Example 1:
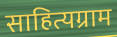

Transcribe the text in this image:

साहित्यग्राम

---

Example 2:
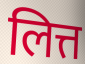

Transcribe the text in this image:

लित्त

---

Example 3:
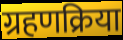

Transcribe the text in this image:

ग्रहणक्रिया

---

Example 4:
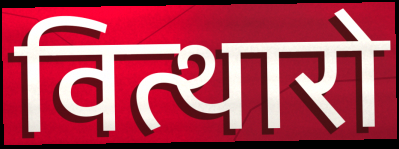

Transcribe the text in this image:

वित्थारो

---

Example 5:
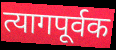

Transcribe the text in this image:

त्यागपूर्वक